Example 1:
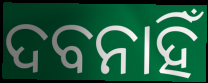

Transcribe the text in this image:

ଦବନାହିଁ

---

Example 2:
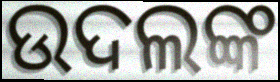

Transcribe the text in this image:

ଉଦଲଙ୍କ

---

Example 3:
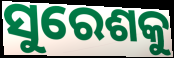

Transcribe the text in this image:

ସୁରେଶକୁ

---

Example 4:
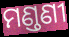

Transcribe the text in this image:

ମଣ୍ଡଣୀ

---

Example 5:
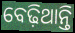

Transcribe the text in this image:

ବେଢ଼ିଥାନ୍ତି